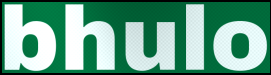
bhulo